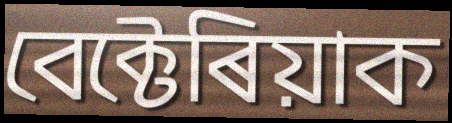
বেক্টেৰিয়াক